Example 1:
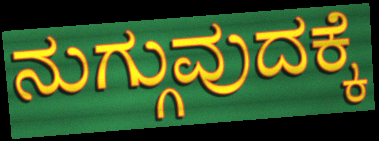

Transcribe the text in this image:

ನುಗ್ಗುವುದಕ್ಕೆ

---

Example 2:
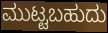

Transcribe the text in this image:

ಮುಟ್ಟಬಹುದು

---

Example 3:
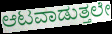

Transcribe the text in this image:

ಆಟವಾಡುತ್ತಲೇ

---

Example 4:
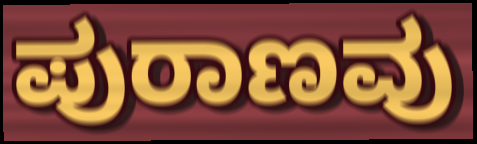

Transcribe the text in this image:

ಪುರಾಣವು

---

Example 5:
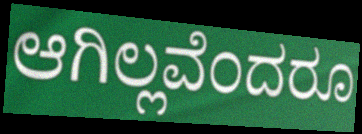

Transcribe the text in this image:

ಆಗಿಲ್ಲವೆಂದರೂ